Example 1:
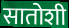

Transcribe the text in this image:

सातोशी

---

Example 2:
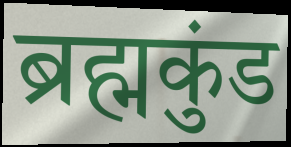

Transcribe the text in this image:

ब्रह्मकुंड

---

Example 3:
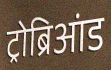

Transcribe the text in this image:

ट्रोब्रिआंड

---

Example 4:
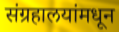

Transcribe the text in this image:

संग्रहालयांमधून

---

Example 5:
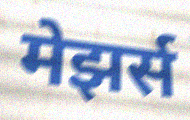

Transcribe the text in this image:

मेझर्स